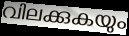
വിലക്കുകയും